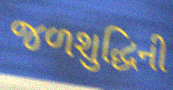
જળશુદ્ધિની